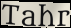
Tahr